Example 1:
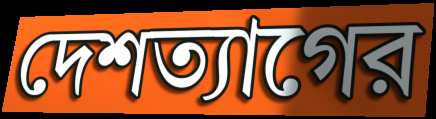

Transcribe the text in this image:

দেশত্যাগের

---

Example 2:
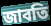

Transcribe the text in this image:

জাবতি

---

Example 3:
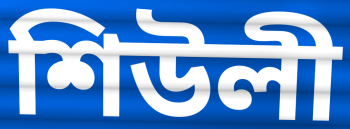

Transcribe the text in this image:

শিউলী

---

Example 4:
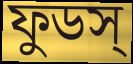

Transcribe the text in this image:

ফুডস্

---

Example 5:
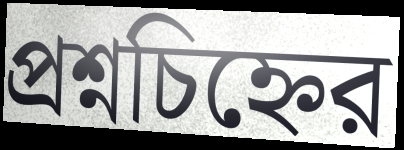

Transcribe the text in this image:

প্রশ্নচিহ্নের